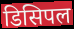
डिसिपल